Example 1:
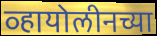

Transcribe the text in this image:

व्हायोलीनच्या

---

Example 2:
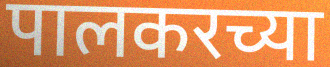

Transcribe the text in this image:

पालकरच्या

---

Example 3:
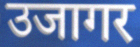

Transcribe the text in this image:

उजागर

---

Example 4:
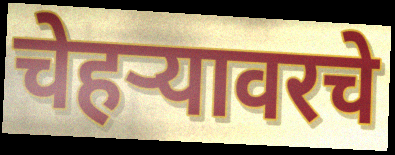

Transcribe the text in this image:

चेहऱ्यावरचे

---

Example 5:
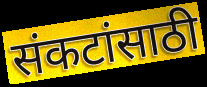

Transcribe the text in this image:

संकटांसाठी